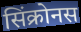
सिंक्रोनस